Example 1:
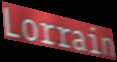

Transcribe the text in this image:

Lorrain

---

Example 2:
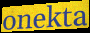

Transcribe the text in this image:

onekta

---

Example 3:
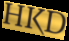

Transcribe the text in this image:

HKD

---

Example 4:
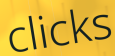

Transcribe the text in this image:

clicks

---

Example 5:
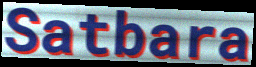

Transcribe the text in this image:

Satbara